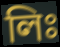
লিঃ